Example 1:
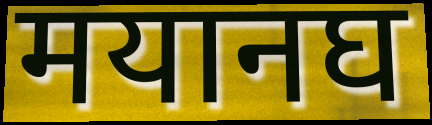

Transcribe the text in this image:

मयानघ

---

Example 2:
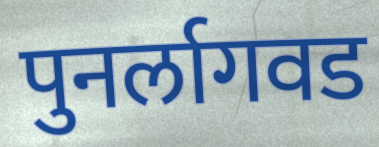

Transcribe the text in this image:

पुनर्लागवड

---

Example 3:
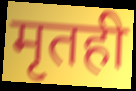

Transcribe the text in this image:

मृतही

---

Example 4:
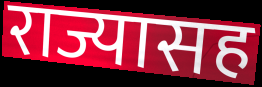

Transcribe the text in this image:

राज्यासह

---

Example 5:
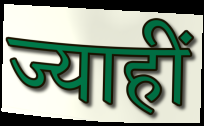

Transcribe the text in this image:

ज्याहीं